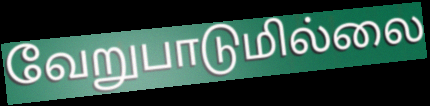
வேறுபாடுமில்லை